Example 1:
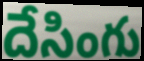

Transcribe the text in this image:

దేసింగు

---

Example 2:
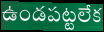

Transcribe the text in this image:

ఉండపట్టలేక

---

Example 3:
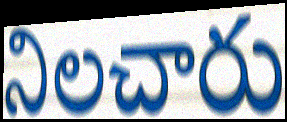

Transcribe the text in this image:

నిలచారు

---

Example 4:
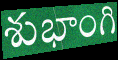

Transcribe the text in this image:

శుభాంగి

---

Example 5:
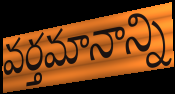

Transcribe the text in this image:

వర్తమానాన్ని